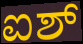
ಐಶ್